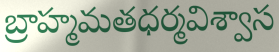
బ్రాహ్మమతధర్మవిశ్వాస